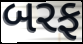
બરફ